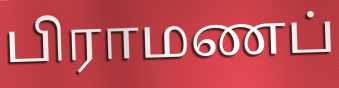
பிராமணப்